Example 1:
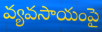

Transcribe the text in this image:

వ్యవసాయంపై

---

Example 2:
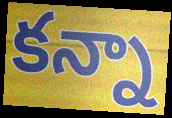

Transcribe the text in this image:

కన్నా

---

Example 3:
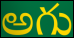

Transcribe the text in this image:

అగు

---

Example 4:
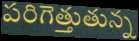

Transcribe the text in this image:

పరిగెత్తుతున్న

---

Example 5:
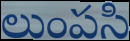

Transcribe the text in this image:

లుంపసి